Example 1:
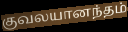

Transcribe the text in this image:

குவலயானந்தம்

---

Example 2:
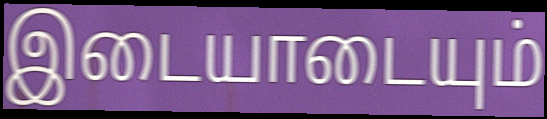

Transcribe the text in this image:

இடையாடையும்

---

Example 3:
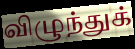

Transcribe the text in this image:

விழுந்துக்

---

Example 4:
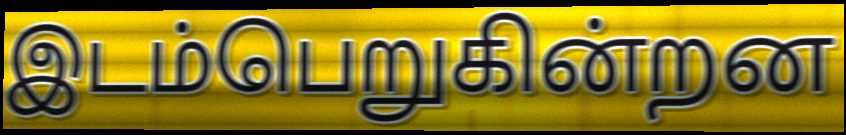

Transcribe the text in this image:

இடம்பெறுகின்றன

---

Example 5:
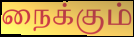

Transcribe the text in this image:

நைக்கும்